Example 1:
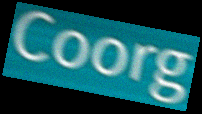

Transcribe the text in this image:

Coorg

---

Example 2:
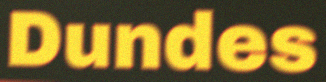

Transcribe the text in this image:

Dundes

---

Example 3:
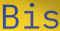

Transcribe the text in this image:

Bis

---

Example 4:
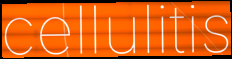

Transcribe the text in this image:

cellulitis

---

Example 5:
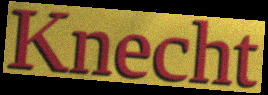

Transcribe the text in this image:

Knecht